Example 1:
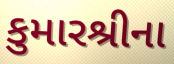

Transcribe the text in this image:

કુમારશ્રીના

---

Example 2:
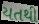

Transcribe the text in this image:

યતથી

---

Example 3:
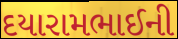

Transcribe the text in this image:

દયારામભાઈની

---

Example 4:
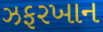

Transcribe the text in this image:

ઝફરખાન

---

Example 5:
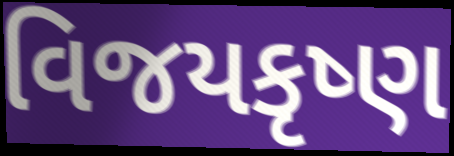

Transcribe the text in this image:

વિજયકૃષ્ણ